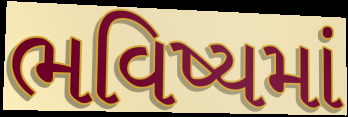
ભવિષ્યમાં